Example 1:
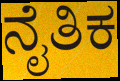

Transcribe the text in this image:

ನೈತಿಕ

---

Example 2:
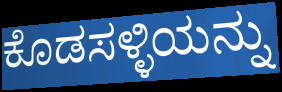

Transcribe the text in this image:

ಕೊಡಸಳ್ಳಿಯನ್ನು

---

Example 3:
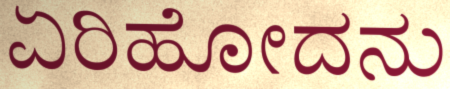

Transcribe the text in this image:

ಏರಿಹೋದನು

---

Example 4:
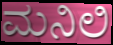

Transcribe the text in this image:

ಮನಿಲಿ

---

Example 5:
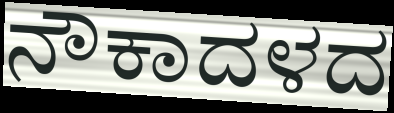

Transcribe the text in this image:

ನೌಕಾದಳದ